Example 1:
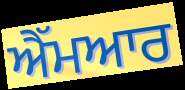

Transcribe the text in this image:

ਐੱਮਆਰ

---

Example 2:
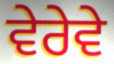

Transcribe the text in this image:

ਵੇਰੇਵੇ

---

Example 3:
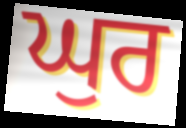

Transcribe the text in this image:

ਘੁਰ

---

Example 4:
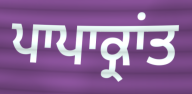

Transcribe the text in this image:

ਪਾਪਾਕ੍ਰਾਂਤ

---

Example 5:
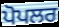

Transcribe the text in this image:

ਪੋਪਲਰ